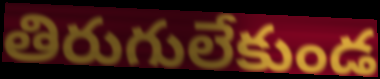
తిరుగులేకుండ